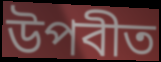
উপবীত